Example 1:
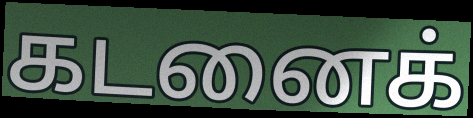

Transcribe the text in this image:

கடனைக்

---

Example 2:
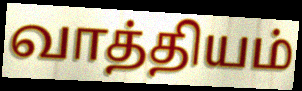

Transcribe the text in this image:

வாத்தியம்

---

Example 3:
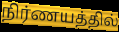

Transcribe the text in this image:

நிர்ணயத்தில்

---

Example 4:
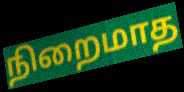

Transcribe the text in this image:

நிறைமாத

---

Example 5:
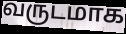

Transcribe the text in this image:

வருடமாக